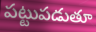
పట్టుపడుతూ